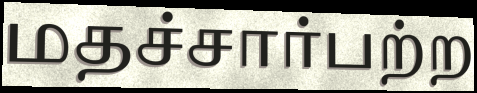
மதச்சார்பற்ற